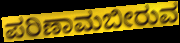
ಪರಿಣಾಮಬೀರುವ